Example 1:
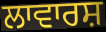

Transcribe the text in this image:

ਲਾਵਾਰਸ਼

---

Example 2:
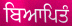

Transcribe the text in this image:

ਬਿਆਪਿਤੰ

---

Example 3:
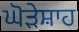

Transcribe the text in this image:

ਘੋੜੇਸ਼ਾਹ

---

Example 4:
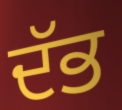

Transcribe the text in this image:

ਦੱਭ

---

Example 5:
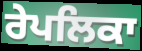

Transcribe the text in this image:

ਰੇਪਲਿਕਾ